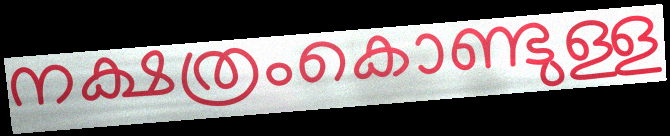
നക്ഷത്രംകൊണ്ടുള്ള